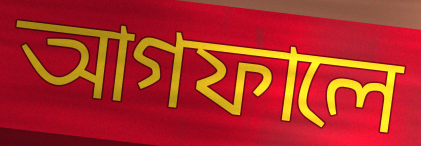
আগফালে